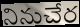
నినుచేర